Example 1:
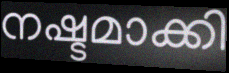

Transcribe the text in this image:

നഷ്ടമാക്കി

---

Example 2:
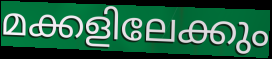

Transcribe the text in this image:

മക്കളിലേക്കും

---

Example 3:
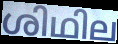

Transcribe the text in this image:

ശിഥില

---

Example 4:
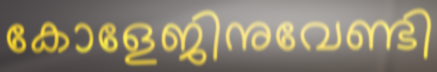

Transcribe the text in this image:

കോളേജിനുവേണ്ടി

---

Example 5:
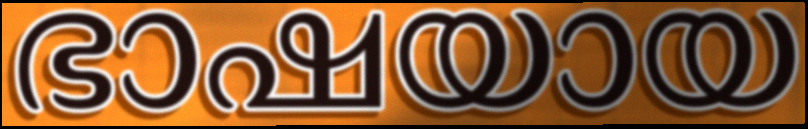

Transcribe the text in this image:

ഭാഷയായ